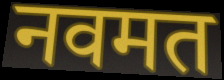
नवमत